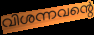
വിശന്നവന്റെ